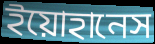
ইয়োহানেস